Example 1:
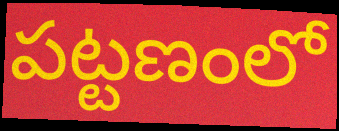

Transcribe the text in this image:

పట్టణంలో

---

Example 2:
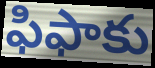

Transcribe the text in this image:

ఫిఫాకు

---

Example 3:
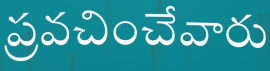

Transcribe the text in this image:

ప్రవచించేవారు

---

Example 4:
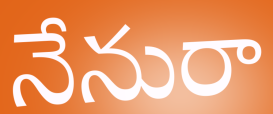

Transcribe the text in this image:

నేనురా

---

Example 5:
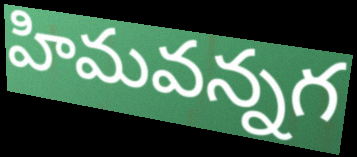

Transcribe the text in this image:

హిమవన్నగ